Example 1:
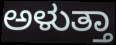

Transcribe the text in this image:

ಅಳುತ್ತಾ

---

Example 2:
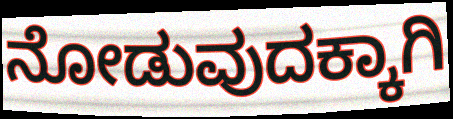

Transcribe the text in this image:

ನೋಡುವುದಕ್ಕಾಗಿ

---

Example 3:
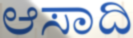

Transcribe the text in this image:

ಆಸಾದಿ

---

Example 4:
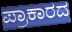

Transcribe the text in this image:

ಪ್ರಾಕಾರದ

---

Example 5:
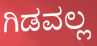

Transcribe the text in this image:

ಗಿಡವಲ್ಲ